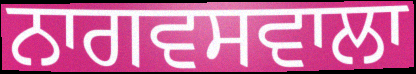
ਨਾਗਵਸਵਾਲਾ